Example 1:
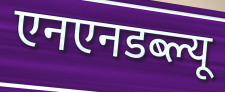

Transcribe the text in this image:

एनएनडब्ल्यू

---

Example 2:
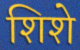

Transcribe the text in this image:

शिशे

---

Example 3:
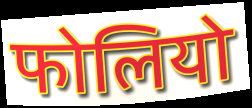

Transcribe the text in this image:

फोलियो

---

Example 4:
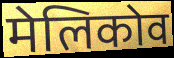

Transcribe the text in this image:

मेलिकोव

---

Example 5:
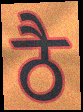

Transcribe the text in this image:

ठै